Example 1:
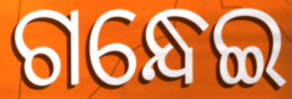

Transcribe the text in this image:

ଗନ୍ଧେଇ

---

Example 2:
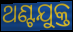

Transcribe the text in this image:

ଥଣ୍ଟଯୁକ୍ତ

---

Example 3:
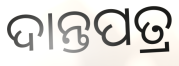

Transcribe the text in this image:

ଦାନ୍ତପତ୍ର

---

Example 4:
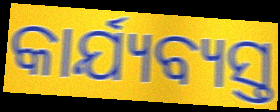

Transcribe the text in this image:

କାର୍ଯ୍ୟବ୍ୟସ୍ତ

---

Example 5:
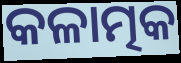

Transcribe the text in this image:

କଳାତ୍ମକ